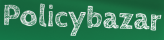
Policybazar